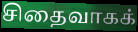
சிதைவாகக்